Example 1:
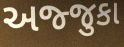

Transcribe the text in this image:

અજ્જુકા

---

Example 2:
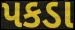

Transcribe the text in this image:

પકડા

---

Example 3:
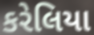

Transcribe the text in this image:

કરેલિયા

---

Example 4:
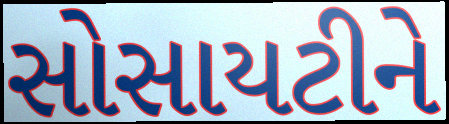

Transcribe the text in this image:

સોસાયટીને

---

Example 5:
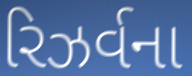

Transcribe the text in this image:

રિઝર્વના